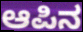
ಆಪಿನ